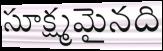
సూక్ష్మమైనది